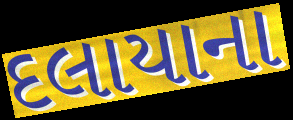
દલાયાના